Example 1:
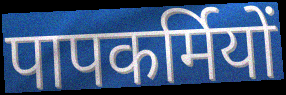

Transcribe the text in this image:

पापकर्मियों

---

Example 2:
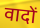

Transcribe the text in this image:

वादों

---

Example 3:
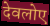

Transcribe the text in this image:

देवलोए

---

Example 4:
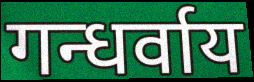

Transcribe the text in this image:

गन्धर्वाय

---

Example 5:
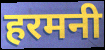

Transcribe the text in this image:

हरमनी